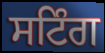
ਸਟਿੰਗ